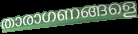
താരാഗണങ്ങളെ